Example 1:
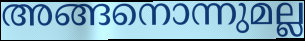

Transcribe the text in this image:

അങ്ങനൊന്നുമല്ല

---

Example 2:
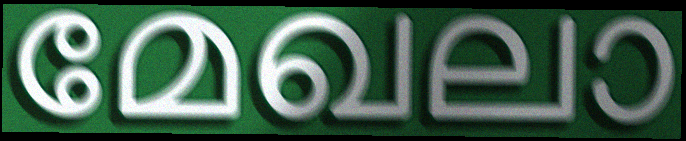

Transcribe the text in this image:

മേഖലാ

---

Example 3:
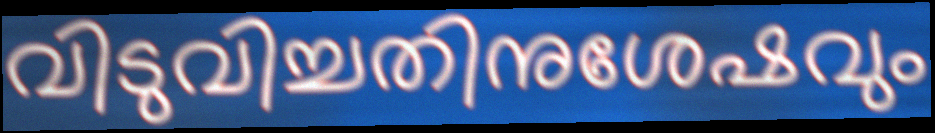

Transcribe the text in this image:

വിടുവിച്ചതിനുശേഷവും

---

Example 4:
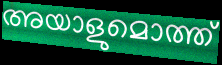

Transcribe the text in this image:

അയാളുമൊത്ത്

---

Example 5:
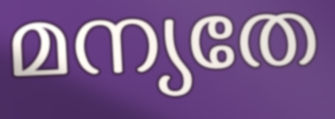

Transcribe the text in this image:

മന്യതേ